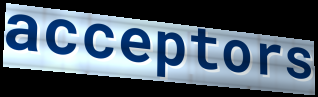
acceptors